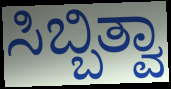
ಸಿಬ್ಬಿತ್ವಾ